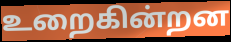
உறைகின்றன